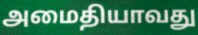
அமைதியாவது